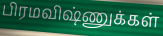
பிரமவிஷ்ணுக்கள்